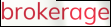
brokerage